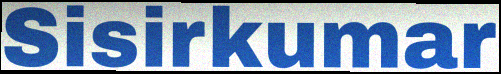
Sisirkumar